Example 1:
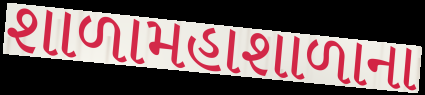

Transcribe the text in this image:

શાળામહાશાળાના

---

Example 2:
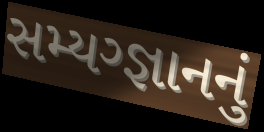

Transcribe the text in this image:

સમ્યગ્જ્ઞાનનું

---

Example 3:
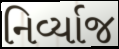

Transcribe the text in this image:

નિર્વ્યાજ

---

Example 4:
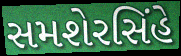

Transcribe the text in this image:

સમશેરસિંહે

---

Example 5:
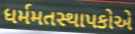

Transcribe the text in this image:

ધર્મમતસ્થાપકોએ